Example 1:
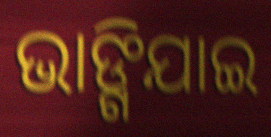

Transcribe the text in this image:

ଭାଙ୍ଗିଯାଇ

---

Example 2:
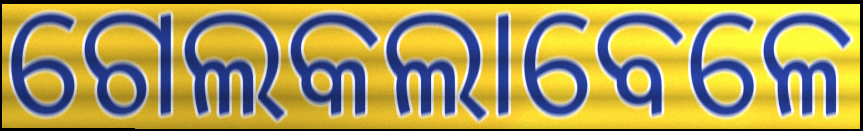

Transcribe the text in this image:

ଗେଲକଲାବେଳେ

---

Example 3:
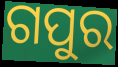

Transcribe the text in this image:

ଗପୁର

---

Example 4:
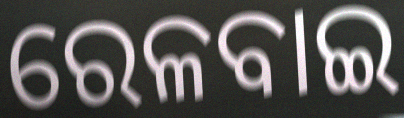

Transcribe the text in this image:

ରେଳବାଇ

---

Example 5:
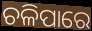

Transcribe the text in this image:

ଚଳିପାରେ